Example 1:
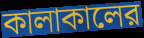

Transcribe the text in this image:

কালাকালের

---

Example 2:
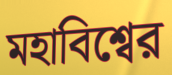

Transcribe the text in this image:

মহাবিশ্বের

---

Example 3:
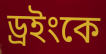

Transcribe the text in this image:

ড্রইংকে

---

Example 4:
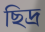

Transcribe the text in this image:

ছিদ্র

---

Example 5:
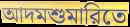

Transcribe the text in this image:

আদমশুমারিতে